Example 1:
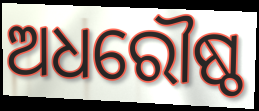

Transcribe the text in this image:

ଅଧରୌଷ୍ଠ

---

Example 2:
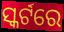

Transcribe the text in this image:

ସ୍କର୍ଟରେ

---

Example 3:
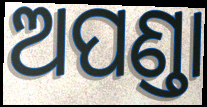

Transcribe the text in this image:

ଅପଣ୍ଡା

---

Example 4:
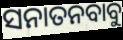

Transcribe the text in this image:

ସନାତନବାବୁ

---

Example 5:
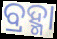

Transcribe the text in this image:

ବ୍ରହ୍ମା